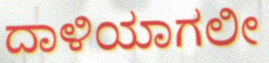
ದಾಳಿಯಾಗಲೀ